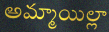
అమ్మాయిల్లా